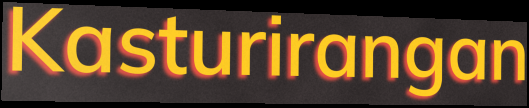
Kasturirangan